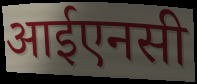
आईएनसी